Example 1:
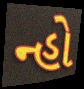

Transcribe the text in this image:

ન્હો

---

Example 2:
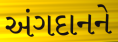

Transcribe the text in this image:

અંગદાનને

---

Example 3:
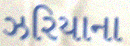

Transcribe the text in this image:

ઝરિયાના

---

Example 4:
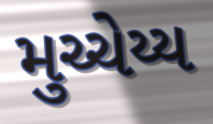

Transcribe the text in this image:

મુચ્ચેય્ય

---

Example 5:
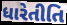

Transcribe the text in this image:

ધારેતીતિ